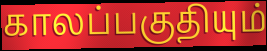
காலப்பகுதியும்